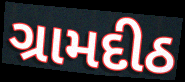
ગ્રામદીઠ